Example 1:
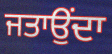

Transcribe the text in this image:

ਜਤਾਉਂਦਾ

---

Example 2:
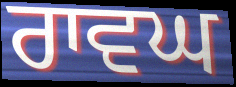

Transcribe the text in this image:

ਰਾਵਘ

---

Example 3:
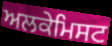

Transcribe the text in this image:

ਅਲਕੇਮਿਸਟ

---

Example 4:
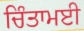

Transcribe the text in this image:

ਚਿੰਤਾਮਈ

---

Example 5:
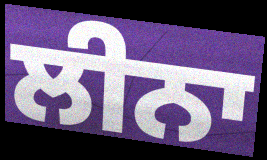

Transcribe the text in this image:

ਲੀਨਾ